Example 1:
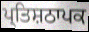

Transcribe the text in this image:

ਪ੍ਤਿਸ਼ਠਾਪਕ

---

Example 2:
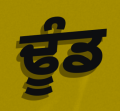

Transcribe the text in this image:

ਢੂੰਡ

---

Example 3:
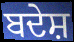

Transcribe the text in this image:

ਬਦੇਸ਼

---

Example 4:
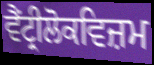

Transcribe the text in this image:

ਵੈਂਟ੍ਰੀਲੋਕਵਿਜ਼ਮ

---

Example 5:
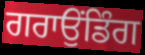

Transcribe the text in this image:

ਗਰਾਉਂਡਿੰਗ